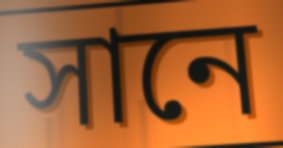
সানে